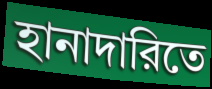
হানাদারিতে